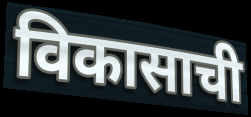
विकासाची